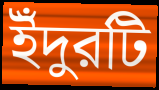
ইঁদুরটি